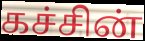
கச்சின்